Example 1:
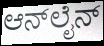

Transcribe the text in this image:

ಆನ್‍ಲೈನ್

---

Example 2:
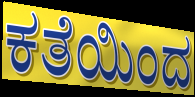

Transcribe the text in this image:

ಕತೆಯಿಂದ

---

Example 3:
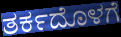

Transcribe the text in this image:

ತರ್ಕದೊಳಗೆ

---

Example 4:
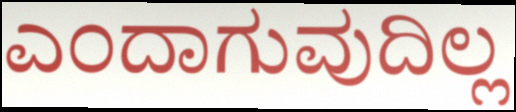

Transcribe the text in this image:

ಎಂದಾಗುವುದಿಲ್ಲ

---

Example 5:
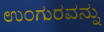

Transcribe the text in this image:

ಉಂಗುರವನ್ನು